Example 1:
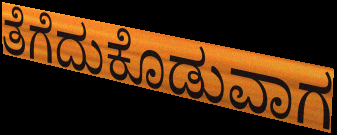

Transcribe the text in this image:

ತೆಗೆದುಕೊಡುವಾಗ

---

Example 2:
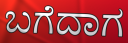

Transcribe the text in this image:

ಬಗೆದಾಗ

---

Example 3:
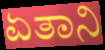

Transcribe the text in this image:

ಏತಾನಿ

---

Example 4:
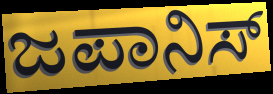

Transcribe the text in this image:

ಜಪಾನಿಸ್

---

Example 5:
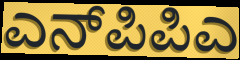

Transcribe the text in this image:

ಎನ್‌ಪಿಪಿಎ